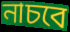
নাচবে